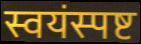
स्वयंस्पष्ट